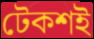
টেকশই